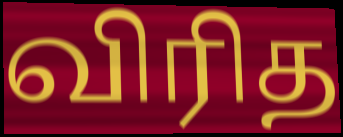
விரித